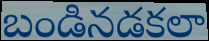
బండినడకలా